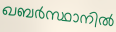
ഖബർസ്ഥാനിൽ